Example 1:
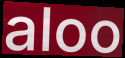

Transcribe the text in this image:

aloo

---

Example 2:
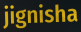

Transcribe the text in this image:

jignisha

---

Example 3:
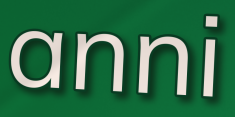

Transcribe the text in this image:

anni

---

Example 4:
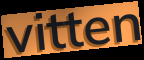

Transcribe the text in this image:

vitten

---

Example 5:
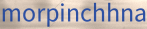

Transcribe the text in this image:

morpinchhna